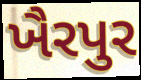
ખૈરપુર